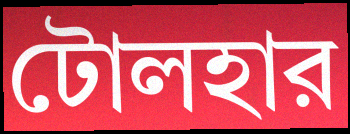
টোলহার